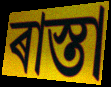
ৰাস্তা